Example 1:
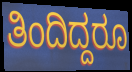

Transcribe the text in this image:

ತಿಂದಿದ್ದರೂ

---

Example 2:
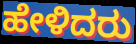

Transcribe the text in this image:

ಹೇಳಿದರು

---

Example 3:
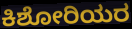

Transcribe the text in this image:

ಕಿಶೋರಿಯರ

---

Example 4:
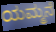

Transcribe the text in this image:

ಯಮ್ಮನೆ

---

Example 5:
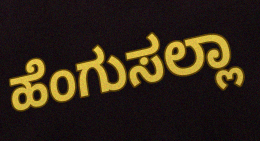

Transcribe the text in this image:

ಹೆಂಗುಸಲ್ಲಾ